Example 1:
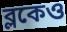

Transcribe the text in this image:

ব্লকেও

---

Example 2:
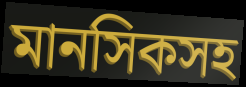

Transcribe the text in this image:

মানসিকসহ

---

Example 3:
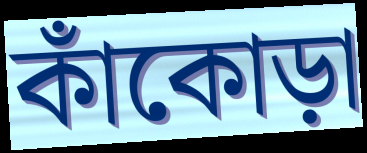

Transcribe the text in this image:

কাঁকোড়া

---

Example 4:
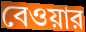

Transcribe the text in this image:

বেওয়ার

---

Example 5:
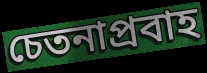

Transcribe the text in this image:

চেতনাপ্রবাহ